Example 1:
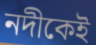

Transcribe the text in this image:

নদীকেই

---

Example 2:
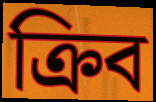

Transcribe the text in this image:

ক্রিব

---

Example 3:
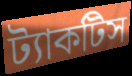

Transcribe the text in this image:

ট্যাকটিস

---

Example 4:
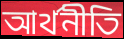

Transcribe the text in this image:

আর্থনীতি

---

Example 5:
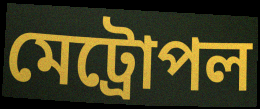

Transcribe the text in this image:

মেট্রোপল